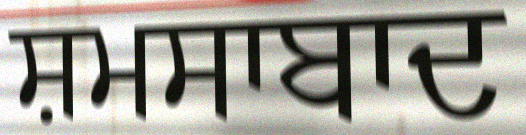
ਸ਼ਮਸਾਬਾਦ